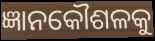
ଜ୍ଞାନକୌଶଳକୁ